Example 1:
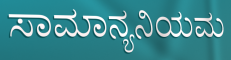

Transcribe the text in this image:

ಸಾಮಾನ್ಯನಿಯಮ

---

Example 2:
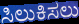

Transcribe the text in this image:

ಸಿಲುಕಿಸಲು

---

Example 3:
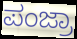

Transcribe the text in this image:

ಪಂಜ್ರಾ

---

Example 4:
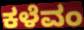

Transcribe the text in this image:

ಕಳೆವಂ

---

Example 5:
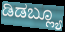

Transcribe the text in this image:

ಡಿಡಬ್ಲ್ಯೂ